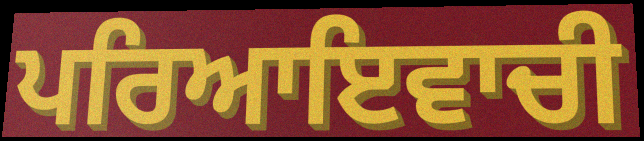
ਪਰਿਆਇਵਾਚੀ